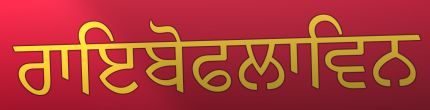
ਰਾਇਬੋਫਲਾਵਿਨ